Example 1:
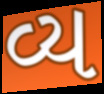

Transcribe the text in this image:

વ્ય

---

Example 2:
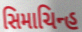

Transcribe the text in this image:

સિમાચિન્હ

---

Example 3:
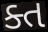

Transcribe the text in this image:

ક્ત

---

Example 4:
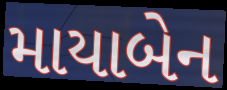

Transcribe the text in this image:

માયાબેન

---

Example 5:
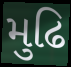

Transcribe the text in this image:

મુઢિ